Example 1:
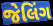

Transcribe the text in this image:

જેલિંગ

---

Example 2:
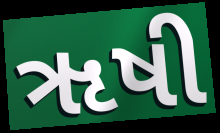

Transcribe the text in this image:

ૠષી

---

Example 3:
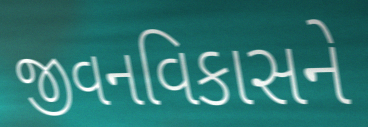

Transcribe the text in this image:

જીવનવિકાસને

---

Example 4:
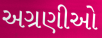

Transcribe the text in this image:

અગ્રણીઓ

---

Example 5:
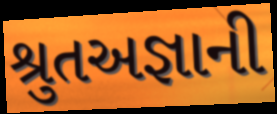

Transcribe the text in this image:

શ્રુતઅજ્ઞાની